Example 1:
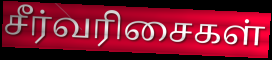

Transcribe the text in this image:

சீர்வரிசைகள்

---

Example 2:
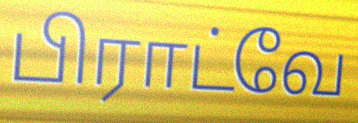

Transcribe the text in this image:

பிராட்வே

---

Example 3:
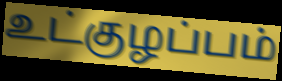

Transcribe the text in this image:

உட்குழப்பம்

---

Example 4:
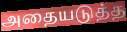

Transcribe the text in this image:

அதையடுத்த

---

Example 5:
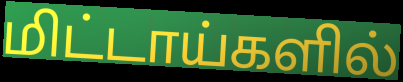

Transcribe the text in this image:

மிட்டாய்களில்